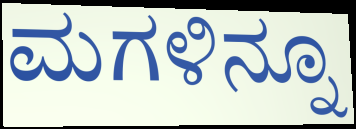
ಮಗಳಿನ್ನೂ